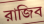
রাজিব